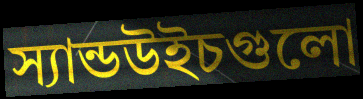
স্যান্ডউইচগুলো